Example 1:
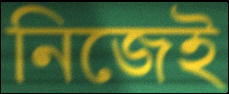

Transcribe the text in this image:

নিজেই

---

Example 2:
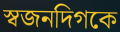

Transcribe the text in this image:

স্বজনদিগকে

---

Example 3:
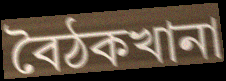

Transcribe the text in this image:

বৈঠকখানা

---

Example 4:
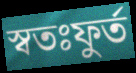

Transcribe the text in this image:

স্বতঃফুর্ত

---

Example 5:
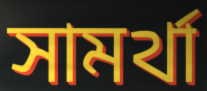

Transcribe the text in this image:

সামর্থা